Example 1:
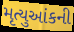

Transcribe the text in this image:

મૃત્યુઆંકની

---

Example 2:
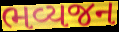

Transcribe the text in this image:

ભવ્યજન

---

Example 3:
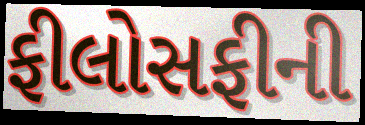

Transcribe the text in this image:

ફીલોસફીની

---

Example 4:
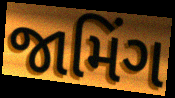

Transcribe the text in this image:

જામિંગ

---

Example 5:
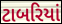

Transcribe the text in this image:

ટાબરિયાં